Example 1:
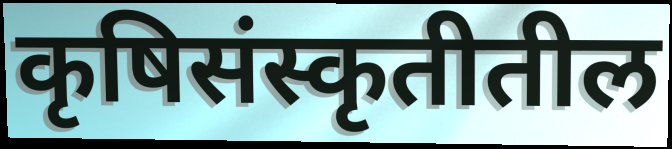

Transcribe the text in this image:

कृषिसंस्कृतीतील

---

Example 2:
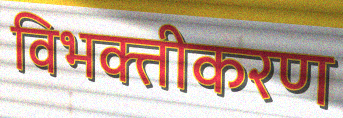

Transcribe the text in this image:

विभक्तीकरण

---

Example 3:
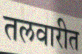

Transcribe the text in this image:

तलवारीत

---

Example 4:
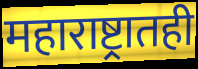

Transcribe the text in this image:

महाराष्ट्रातही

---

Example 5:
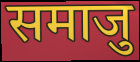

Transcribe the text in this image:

समाजु